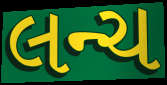
લન્ચ